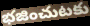
భజించుటకు